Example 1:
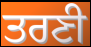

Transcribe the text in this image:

ਤਰਣੀ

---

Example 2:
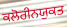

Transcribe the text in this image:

ਕਲੋਰੀਨਯੁਕਤ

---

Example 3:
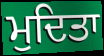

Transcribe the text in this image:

ਮੁਦਿਤਾ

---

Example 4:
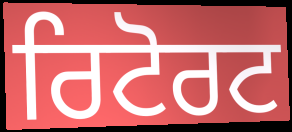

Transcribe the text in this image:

ਰਿਟੋਰਟ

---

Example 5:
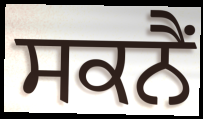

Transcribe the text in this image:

ਸਕਨੈਂ